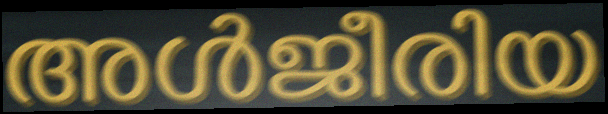
അൾജീരിയ